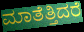
ಮಾತೆತ್ತಿದರೆ